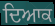
ਦਿਆਕ